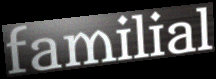
familial